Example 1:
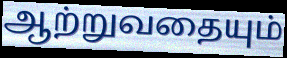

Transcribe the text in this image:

ஆற்றுவதையும்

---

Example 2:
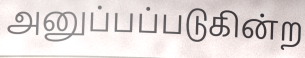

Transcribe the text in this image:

அனுப்பப்படுகின்ற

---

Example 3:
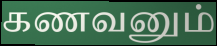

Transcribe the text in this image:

கணவனும்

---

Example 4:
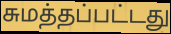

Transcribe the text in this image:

சுமத்தப்பட்டது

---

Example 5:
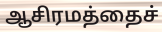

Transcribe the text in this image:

ஆசிரமத்தைச்